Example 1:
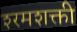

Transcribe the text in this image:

श्रमशक्ती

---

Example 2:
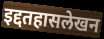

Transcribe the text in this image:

इद्दतहासलेखन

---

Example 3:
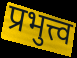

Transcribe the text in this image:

प्रभुत्त्व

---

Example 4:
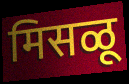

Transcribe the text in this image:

मिसळू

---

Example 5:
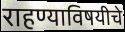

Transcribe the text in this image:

राहण्याविषयीचे